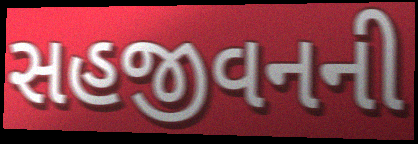
સહજીવનની